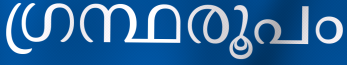
ഗ്രന്ഥരൂപം